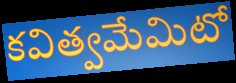
కవిత్వమేమిటో